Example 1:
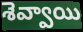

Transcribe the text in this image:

శెవ్వాయి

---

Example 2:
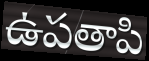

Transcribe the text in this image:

ఉపతాపి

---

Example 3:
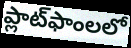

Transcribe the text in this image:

ప్లాట్‌ఫాంలలో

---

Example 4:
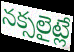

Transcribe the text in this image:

నక్సలైట్లే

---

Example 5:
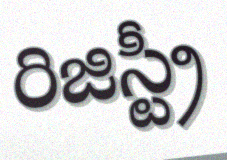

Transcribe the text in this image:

రిజిస్ట్రీ